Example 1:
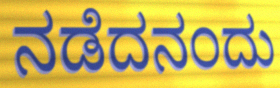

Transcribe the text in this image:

ನಡೆದನಂದು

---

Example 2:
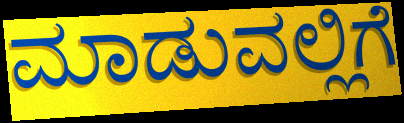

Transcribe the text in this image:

ಮಾಡುವಲ್ಲಿಗೆ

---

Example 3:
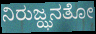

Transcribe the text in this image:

ನಿರುಜ್ಝನತೋ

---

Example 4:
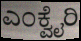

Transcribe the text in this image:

ಎಂಕ್ವೈರಿ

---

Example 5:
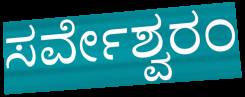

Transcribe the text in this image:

ಸರ್ವೇಶ್ವರಂ